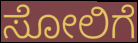
ಸೋಲಿಗೆ